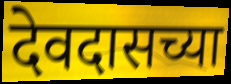
देवदासच्या